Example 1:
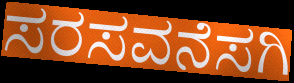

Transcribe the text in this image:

ಸರಸವನೆಸಗಿ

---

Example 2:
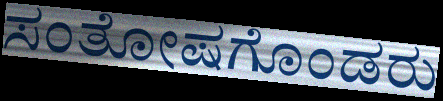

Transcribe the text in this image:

ಸಂತೋಷಗೊಂಡರು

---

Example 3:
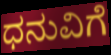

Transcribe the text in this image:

ಧನುವಿಗೆ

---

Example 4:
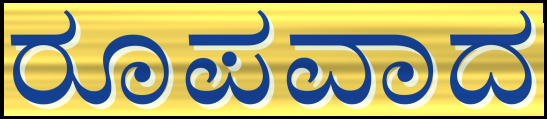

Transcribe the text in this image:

ರೂಪವಾದ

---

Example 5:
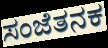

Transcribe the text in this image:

ಸಂಜೆತನಕ